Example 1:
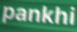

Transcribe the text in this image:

pankhi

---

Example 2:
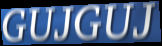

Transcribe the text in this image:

GUJGUJ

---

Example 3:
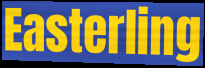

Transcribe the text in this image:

Easterling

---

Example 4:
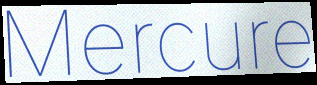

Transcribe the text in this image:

Mercure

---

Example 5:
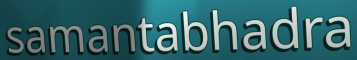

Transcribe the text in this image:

samantabhadra